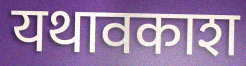
यथावकाश